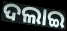
ଦଲାଇ